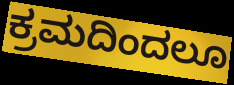
ಕ್ರಮದಿಂದಲೂ